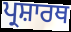
ਪ੍ਰਸ਼ਾਰਥ